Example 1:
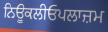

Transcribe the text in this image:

ਨਿਊਕਲੀਓਪਲਾਜ਼ਮ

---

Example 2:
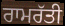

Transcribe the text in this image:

ਰਾਮਰੱਤੀ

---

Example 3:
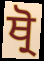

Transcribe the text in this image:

ਥ੍ਰੋ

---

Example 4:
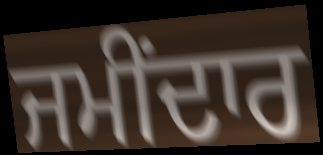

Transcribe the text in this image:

ਜਮੀਂਦਾਰ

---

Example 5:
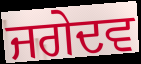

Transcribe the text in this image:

ਜਗੇਦਵ